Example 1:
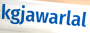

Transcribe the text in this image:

kgjawarlal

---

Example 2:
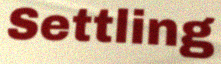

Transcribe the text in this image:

Settling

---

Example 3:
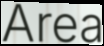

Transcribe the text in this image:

Area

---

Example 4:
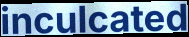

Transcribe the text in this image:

inculcated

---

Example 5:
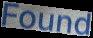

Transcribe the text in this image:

Found